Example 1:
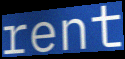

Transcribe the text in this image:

rent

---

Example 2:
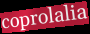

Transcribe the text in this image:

coprolalia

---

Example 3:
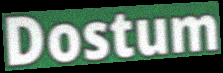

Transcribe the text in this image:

Dostum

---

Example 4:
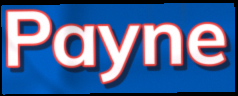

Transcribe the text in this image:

Payne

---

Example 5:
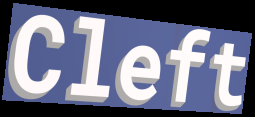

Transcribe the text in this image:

Cleft